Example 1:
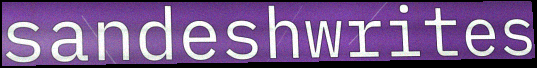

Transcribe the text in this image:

sandeshwrites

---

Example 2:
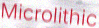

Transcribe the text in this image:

Microlithic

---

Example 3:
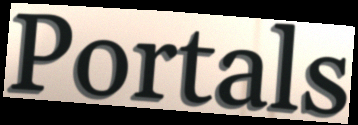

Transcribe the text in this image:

Portals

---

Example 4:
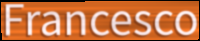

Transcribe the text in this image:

Francesco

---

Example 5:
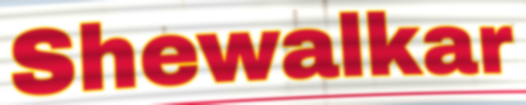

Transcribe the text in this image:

Shewalkar